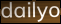
dailyo